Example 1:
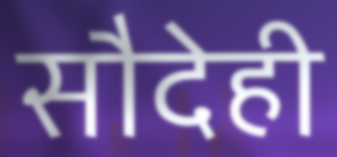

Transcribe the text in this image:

सौदेही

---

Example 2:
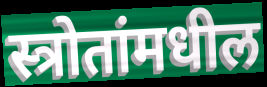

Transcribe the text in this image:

स्त्रोतांमधील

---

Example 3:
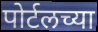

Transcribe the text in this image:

पोर्टलच्या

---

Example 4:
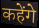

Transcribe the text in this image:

कहेंगे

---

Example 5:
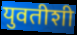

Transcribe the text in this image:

युवतीशी